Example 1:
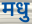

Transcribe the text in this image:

मधु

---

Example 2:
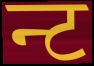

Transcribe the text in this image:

न्ट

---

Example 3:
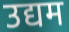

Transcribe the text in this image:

उद्यम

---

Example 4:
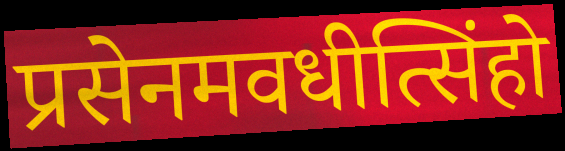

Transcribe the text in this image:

प्रसेनमवधीत्सिंहो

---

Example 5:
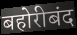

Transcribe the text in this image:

बहोरीबंद